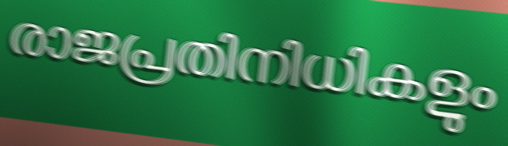
രാജപ്രതിനിധികളും